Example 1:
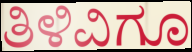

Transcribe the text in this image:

ತಿಳಿವಿಗೂ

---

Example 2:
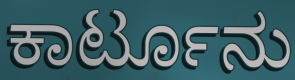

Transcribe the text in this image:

ಕಾರ್ಟೂನು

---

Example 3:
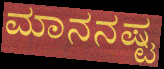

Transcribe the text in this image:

ಮಾನನಷ್ಟ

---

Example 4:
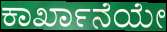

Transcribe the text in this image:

ಕಾರ್ಖಾನೆಯೇ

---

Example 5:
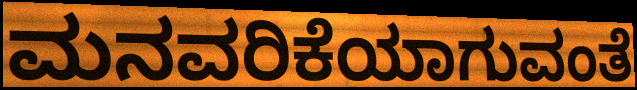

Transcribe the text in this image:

ಮನವರಿಕೆಯಾಗುವಂತೆ